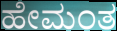
ಹೇಮಂತ